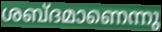
ശബ്ദമാണെന്നു